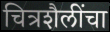
चित्रशैलींचा